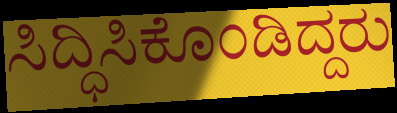
ಸಿದ್ಧಿಸಿಕೊಂಡಿದ್ದರು